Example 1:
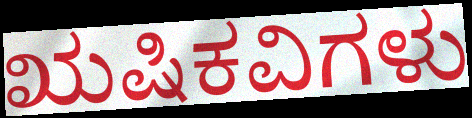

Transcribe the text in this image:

ಋಷಿಕವಿಗಳು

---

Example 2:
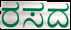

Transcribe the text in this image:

ರಸದ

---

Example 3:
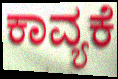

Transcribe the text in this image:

ಕಾವ್ಯಕೆ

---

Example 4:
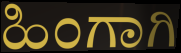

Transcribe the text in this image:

ಹಿಂಗಾಗಿ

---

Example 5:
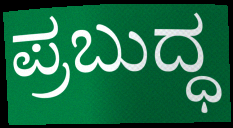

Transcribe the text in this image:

ಪ್ರಬುದ್ಧ